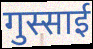
गुस्साई